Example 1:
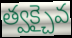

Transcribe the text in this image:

త్వక్చైవ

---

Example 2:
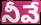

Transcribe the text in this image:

నీవే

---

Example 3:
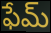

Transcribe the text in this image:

ఫేమ్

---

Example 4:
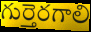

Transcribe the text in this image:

గుర్తెరగాలి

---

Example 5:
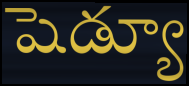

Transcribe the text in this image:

షెడ్యూ